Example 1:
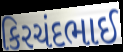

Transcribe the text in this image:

કિરચંદભાઈ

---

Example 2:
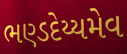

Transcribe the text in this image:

ભણ્ડદેય્યમેવ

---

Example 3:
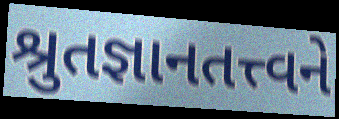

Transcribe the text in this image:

શ્રુતજ્ઞાનતત્ત્વને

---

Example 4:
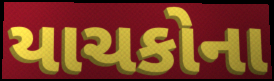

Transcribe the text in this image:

યાચકોના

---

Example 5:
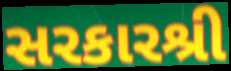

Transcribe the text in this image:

સરકારશ્રી